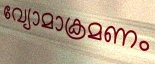
വ്യോമാക്രമണം